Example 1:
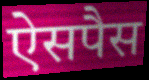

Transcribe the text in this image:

ऐसपैस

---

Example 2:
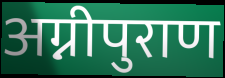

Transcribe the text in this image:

अग्नीपुराण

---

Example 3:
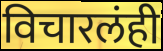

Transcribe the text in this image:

विचारलंही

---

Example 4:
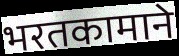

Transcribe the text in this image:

भरतकामाने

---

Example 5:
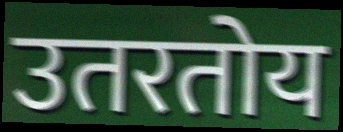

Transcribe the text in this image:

उतरतोय